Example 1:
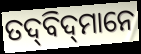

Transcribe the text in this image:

ତଦ୍‌ବିଦ୍‌ମାନେ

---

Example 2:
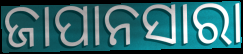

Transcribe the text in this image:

ଜାପାନସାରା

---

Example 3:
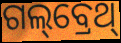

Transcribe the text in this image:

ଗଲ୍‌ବ୍ରେଥ୍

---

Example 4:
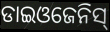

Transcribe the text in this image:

ଡାଇଓଜେନିସ୍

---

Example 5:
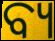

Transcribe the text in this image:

ବ୍ୟ